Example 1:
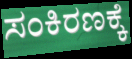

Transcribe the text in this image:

ಸಂಕಿರಣಕ್ಕೆ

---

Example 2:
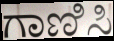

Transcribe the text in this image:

ಗಾಣಿಸಿ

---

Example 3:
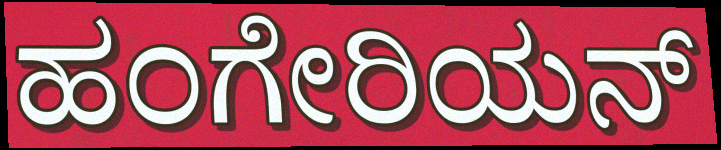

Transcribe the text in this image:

ಹಂಗೇರಿಯನ್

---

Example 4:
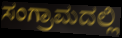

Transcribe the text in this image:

ಸಂಗ್ರಾಮದಲ್ಲಿ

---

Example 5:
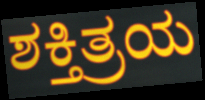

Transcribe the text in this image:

ಶಕ್ತಿತ್ರಯ